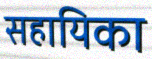
सहायिका